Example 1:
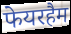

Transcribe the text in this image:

फेयरहैम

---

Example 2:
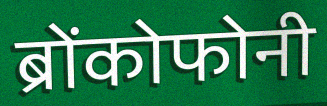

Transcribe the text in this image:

ब्रोंकोफोनी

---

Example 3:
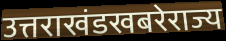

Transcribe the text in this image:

उत्तराखंडखबरेराज्य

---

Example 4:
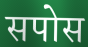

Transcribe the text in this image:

सपोस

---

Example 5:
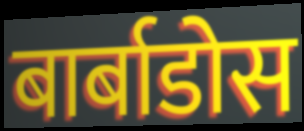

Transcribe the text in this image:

बार्बाडोस